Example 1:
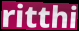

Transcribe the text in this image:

ritthi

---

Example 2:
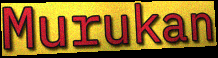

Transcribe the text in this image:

Murukan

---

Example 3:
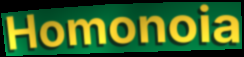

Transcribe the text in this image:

Homonoia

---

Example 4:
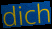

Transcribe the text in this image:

dich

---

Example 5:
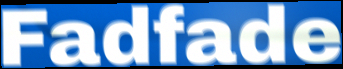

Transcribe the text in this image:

Fadfade